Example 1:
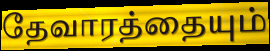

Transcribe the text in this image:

தேவாரத்தையும்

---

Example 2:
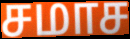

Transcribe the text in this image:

சமாச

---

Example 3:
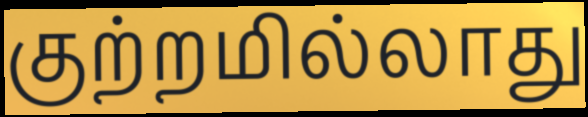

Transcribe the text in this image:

குற்றமில்லாது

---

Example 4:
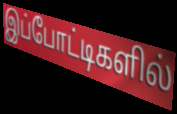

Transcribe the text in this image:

இப்போட்டிகளில்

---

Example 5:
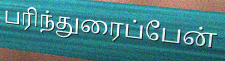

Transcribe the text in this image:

பரிந்துரைப்பேன்